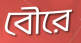
বৌরে